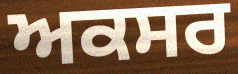
ਅਕਸਰ